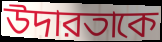
উদারতাকে